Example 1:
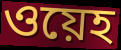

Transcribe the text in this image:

ওয়েহ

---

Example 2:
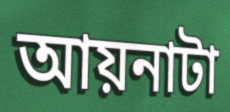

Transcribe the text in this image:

আয়নাটা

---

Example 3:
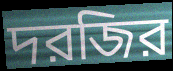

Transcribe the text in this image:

দরজির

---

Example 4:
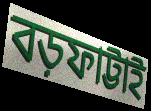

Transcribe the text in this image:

বড়ফাট্টাই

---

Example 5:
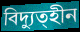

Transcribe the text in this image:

বিদ্যুত্হীন